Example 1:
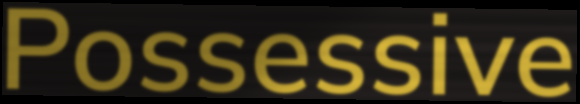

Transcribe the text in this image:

Possessive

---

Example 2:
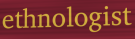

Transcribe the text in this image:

ethnologist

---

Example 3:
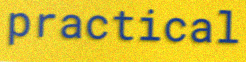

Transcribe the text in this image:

practical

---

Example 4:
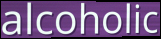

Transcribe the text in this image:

alcoholic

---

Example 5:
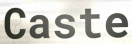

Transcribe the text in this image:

Caste